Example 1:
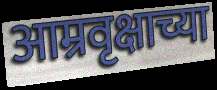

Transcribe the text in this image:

आम्रवृक्षाच्या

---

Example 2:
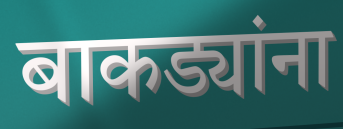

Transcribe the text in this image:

बाकड्यांना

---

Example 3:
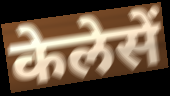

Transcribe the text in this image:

केलेसें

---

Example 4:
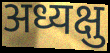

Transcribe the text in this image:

अध्यक्षु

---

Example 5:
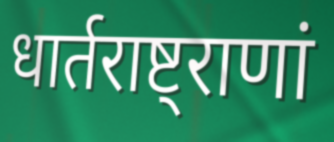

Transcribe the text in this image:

धार्तराष्ट्राणां